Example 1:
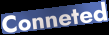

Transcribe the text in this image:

Conneted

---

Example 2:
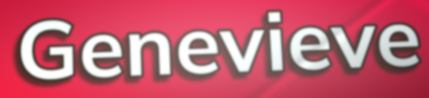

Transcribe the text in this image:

Genevieve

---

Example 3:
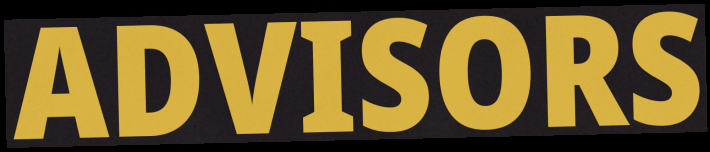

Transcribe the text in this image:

ADVISORS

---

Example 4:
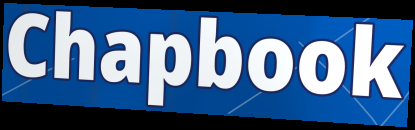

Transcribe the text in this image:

Chapbook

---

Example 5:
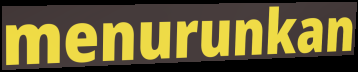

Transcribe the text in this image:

menurunkan